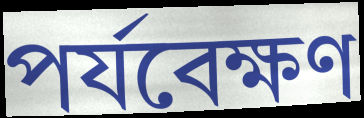
পর্যবেক্ষণ